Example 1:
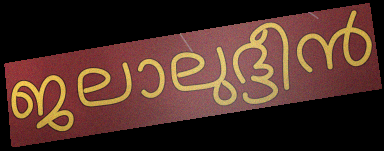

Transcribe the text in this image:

ജലാലുദ്ദീൻ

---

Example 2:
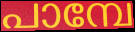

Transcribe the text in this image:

പാമ്പേ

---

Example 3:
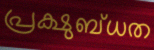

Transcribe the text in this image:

പ്രക്ഷുബ്ധത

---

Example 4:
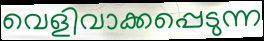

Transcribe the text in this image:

വെളിവാക്കപ്പെടുന്ന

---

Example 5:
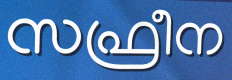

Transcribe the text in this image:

സഫ്രീന